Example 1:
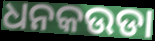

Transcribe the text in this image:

ଧନକଉଡା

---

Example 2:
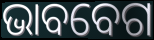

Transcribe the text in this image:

ଭାବବେଗ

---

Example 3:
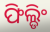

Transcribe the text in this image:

ଫିଲ୍ଡିଂ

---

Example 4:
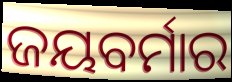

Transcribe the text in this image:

ଜୟବର୍ମାର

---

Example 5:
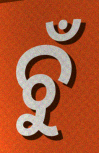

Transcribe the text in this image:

ଚୁଁ